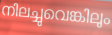
നിലച്ചുവെങ്കിലും